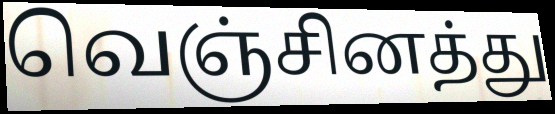
வெஞ்சினத்து